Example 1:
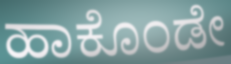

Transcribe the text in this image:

ಹಾಕೊಂಡೇ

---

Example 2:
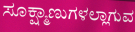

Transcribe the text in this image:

ಸೂಕ್ಷ್ಮಾಣುಗಳಲ್ಲಾಗುವ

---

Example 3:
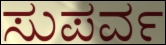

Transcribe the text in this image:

ಸುಪರ್ವ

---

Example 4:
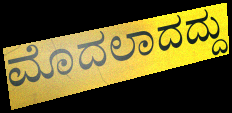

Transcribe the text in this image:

ಮೊದಲಾದದ್ದು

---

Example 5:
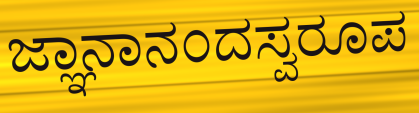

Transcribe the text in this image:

ಜ್ಞಾನಾನಂದಸ್ವರೂಪ